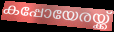
കപ്പോയേരയ്ക്ക്